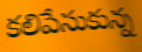
కలిపేసుకున్న